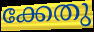
ക്കേതു